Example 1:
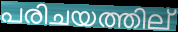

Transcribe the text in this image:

പരിചയത്തില്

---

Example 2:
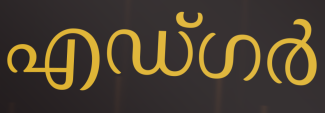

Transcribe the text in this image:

എഡ്ഗർ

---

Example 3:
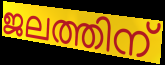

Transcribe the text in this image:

ജലത്തിന്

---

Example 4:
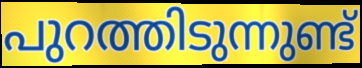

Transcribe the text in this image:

പുറത്തിടുന്നുണ്ട്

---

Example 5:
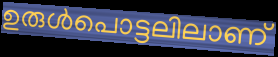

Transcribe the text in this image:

ഉരുൾപൊട്ടലിലാണ്